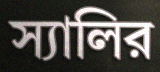
স্যালির